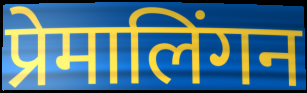
प्रेमालिंगन